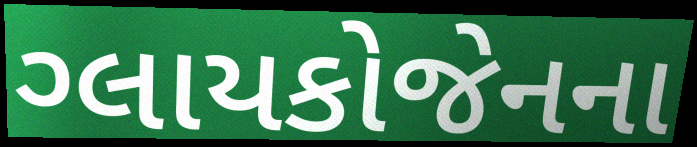
ગ્લાયકોજેનના